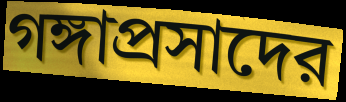
গঙ্গাপ্রসাদের